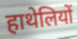
हाथेलियों